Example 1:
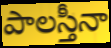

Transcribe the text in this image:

పాలస్తీనా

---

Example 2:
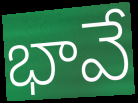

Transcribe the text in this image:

భావే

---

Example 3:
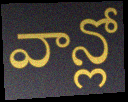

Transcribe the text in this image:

వాన్లో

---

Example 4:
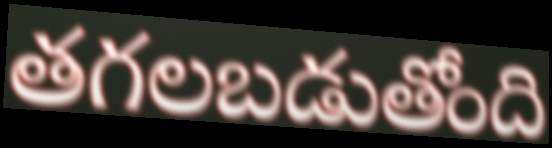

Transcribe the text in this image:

తగలబడుతోంది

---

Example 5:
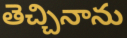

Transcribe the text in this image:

తెచ్చినాను